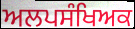
ਅਲਪਸੰਖਿਅਕ